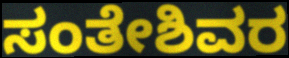
ಸಂತೇಶಿವರ